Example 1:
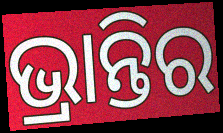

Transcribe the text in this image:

ଭ୍ରାନ୍ତିର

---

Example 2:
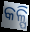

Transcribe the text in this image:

କଳ୍ପି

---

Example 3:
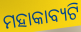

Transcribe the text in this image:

ମହାକାବ୍ୟଟି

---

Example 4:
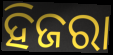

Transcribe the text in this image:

ହିଜରା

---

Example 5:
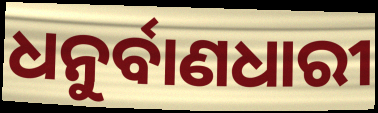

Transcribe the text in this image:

ଧନୁର୍ବାଣଧାରୀ